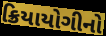
ક્રિયાયોગીનો